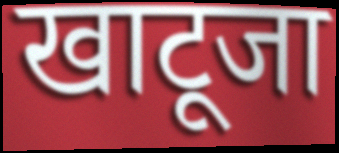
खाटूजा